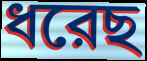
ধরেছ